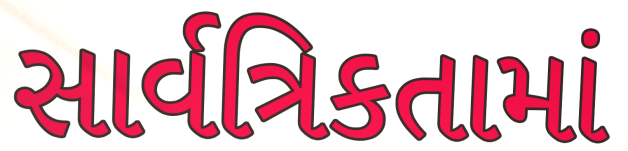
સાર્વત્રિકતામાં